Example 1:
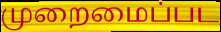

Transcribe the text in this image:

முறைமைப்பட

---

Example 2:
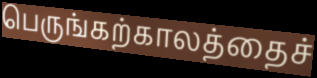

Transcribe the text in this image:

பெருங்கற்காலத்தைச்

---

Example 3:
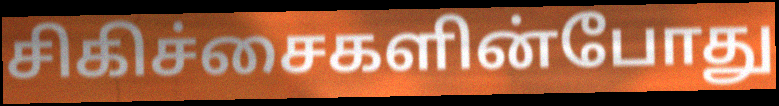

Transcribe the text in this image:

சிகிச்சைகளின்போது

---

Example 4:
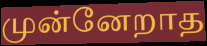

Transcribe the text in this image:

முன்னேறாத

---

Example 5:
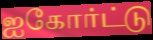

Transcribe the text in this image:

ஐகோர்ட்டு